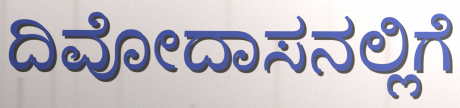
ದಿವೋದಾಸನಲ್ಲಿಗೆ